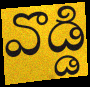
వొడ్డి